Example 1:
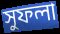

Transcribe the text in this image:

সুফলা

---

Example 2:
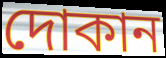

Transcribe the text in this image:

দোকান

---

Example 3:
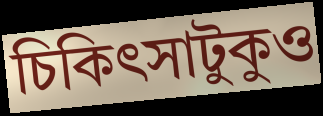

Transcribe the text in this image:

চিকিৎসাটুকুও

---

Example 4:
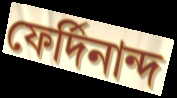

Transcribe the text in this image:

ফের্দিনান্দ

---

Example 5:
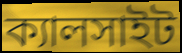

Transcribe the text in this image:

ক্যালসাইট